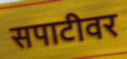
सपाटीवर